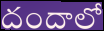
దందాలో